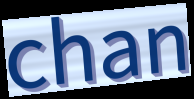
chan